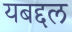
यबद्दल